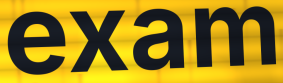
exam